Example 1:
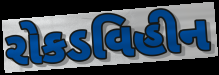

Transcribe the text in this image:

રોકડવિહીન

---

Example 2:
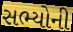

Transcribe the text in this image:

સભ્યોની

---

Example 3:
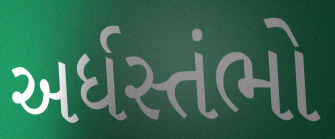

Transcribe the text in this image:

અર્ધસ્તંભો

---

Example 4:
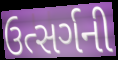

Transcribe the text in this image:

ઉત્સર્ગની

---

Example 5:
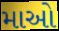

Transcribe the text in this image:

માઓ